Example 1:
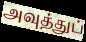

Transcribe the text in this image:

அவுத்துப்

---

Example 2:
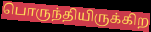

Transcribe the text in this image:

பொருந்தியிருக்கிற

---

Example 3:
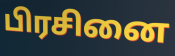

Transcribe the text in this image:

பிரசினை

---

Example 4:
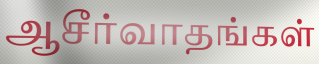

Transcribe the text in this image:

ஆசீர்வாதங்கள்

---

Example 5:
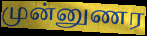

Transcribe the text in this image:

முன்னுணர